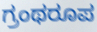
ಗ್ರಂಥರೂಪ